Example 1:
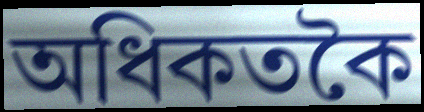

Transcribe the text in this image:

অধিকতকৈ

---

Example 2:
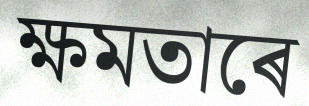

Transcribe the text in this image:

ক্ষমতাৰে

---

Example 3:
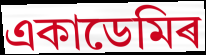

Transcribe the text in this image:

একাডেমিৰ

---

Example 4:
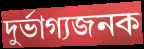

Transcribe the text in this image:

দুৰ্ভাগ্যজনক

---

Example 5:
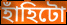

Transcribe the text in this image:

হাঁহিটো